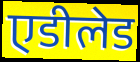
एडीलेड